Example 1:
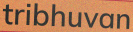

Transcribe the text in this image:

tribhuvan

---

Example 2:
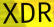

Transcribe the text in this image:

XDR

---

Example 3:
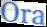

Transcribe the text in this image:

Ora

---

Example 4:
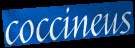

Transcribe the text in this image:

coccineus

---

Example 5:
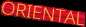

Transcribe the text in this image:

ORIENTAL